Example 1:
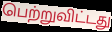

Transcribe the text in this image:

பெற்றுவிட்டது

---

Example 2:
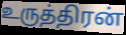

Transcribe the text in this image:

உருத்திரன்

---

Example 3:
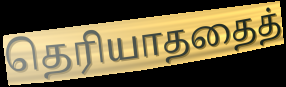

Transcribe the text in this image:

தெரியாததைத்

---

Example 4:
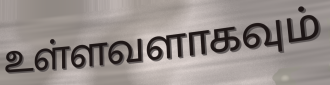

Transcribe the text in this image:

உள்ளவளாகவும்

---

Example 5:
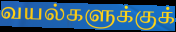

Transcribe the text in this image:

வயல்களுக்குக்